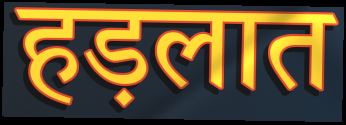
हड़लात